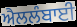
ਐਲਲੰਬਾਈ